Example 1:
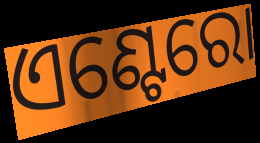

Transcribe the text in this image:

ଏଣ୍ଟେରୋ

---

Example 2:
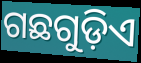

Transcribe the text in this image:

ଗଛଗୁଡ଼ିଏ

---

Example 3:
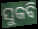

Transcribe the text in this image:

ସୁକବି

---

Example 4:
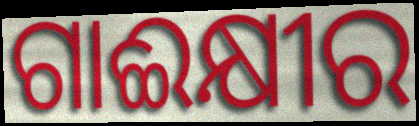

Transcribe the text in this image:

ଗାଈକ୍ଷୀର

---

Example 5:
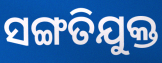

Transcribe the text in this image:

ସଙ୍ଗତିଯୁକ୍ତ